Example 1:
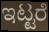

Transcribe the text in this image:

ಇಟ್ಟರೆ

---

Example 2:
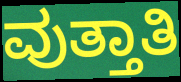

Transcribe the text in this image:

ವುತ್ತಾತಿ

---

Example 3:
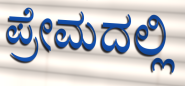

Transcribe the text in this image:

ಪ್ರೇಮದಲ್ಲಿ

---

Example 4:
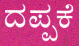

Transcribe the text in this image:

ದಪ್ಪಕೆ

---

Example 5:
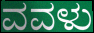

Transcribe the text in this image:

ವವಳು